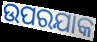
ଉପରଯାକ